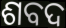
ଶବଦ